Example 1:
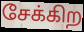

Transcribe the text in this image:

சேக்கிற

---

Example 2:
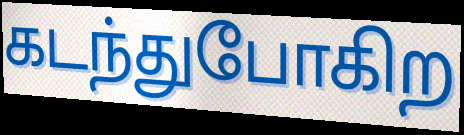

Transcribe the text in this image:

கடந்துபோகிற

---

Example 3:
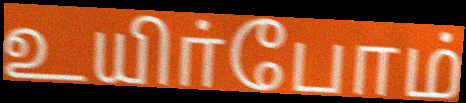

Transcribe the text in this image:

உயிர்போம்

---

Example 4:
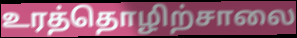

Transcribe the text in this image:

உரத்தொழிற்சாலை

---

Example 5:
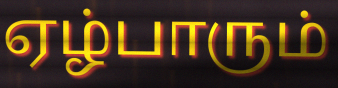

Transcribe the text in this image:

ஏழ்பாரும்